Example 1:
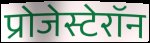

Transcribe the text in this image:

प्रोजेस्टेरॉन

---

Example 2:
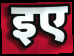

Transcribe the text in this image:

इए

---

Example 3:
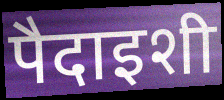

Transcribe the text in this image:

पैदाइशी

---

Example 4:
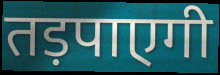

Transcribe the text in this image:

तड़पाएगी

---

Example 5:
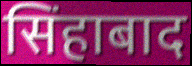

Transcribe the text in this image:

सिंहाबाद